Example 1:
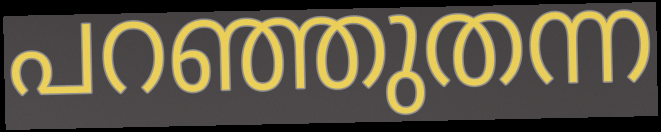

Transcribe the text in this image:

പറഞ്ഞുതന്ന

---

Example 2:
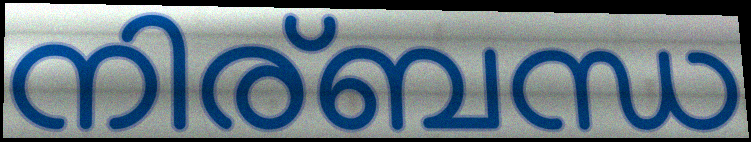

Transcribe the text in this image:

നിര്ബന്ധ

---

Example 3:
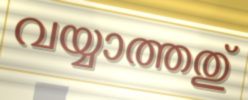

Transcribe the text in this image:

വയ്യാത്തതു്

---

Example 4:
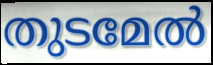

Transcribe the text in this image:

തുടമേൽ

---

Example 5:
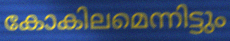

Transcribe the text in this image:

കോകിലമെന്നിട്ടും